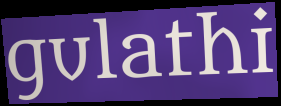
gulathi